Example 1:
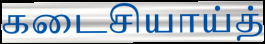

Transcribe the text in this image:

கடைசியாய்த்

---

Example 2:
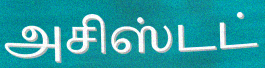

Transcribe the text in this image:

அசிஸ்டட்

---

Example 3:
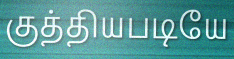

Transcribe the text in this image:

குத்தியபடியே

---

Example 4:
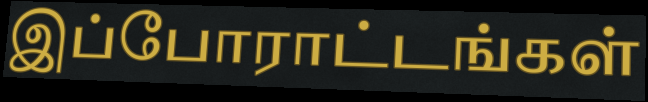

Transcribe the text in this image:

இப்போராட்டங்கள்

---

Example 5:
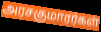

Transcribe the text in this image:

அரசகுமாரர்கள்